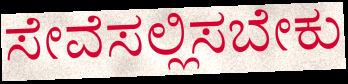
ಸೇವೆಸಲ್ಲಿಸಬೇಕು